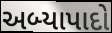
અબ્યાપાદો